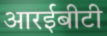
आरईबीटी